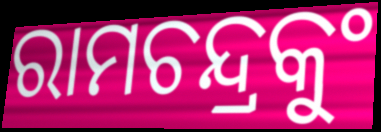
ରାମଚନ୍ଦ୍ରକୁଂ